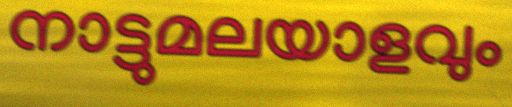
നാട്ടുമലയാളവും